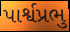
પાર્શ્વપ્રભુ